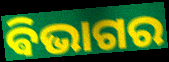
ଵିଭାଗର